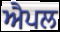
ਐਪਲ